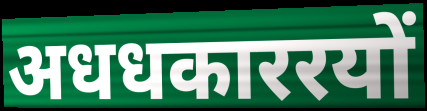
अधधकाररयों